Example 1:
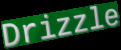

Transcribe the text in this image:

Drizzle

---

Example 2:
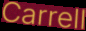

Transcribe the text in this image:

Carrell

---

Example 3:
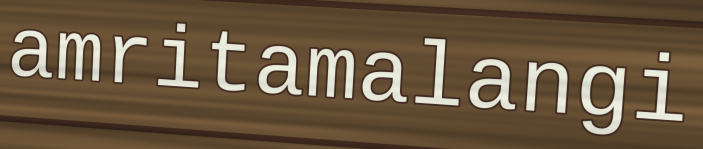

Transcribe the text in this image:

amritamalangi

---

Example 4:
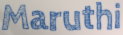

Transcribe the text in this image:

Maruthi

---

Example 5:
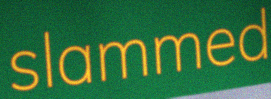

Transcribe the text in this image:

slammed